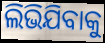
ଲିଭିଯିବାକୁ